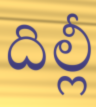
దిల్లీ